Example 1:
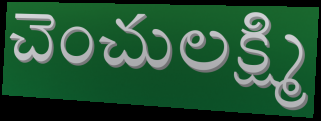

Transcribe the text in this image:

చెంచులక్ష్మి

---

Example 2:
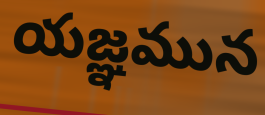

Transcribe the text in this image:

యజ్ఞమున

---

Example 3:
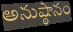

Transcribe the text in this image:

అనుష్ఠానం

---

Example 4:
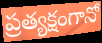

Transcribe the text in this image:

ప్రత్యక్షంగానో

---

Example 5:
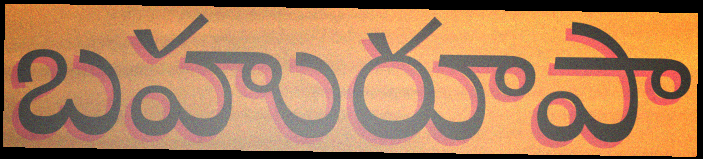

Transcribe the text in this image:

బహురూపా